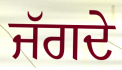
ਜੱਗਦੇ